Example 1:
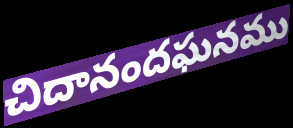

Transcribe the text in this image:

చిదానందఘనము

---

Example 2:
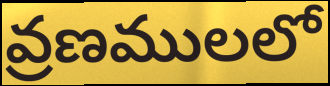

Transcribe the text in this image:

వ్రణములలో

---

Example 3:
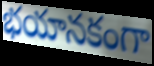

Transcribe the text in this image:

భయానకంగా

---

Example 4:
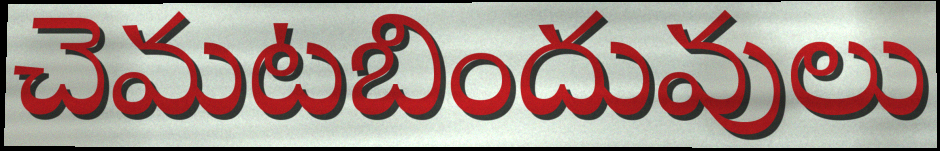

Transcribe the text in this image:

చెమటబిందువులు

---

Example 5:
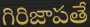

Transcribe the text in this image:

గిరిజాపతే